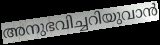
അനുഭവിച്ചറിയുവാൻ